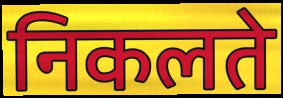
निकलते